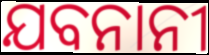
ଯବନାନୀ